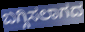
ಬಗ್ಗಿಸಲಾಗದ